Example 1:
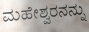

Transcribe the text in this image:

ಮಹೇಶ್ವರನನ್ನು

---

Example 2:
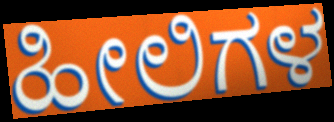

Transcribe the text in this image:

ಹೀಲಿಗಳ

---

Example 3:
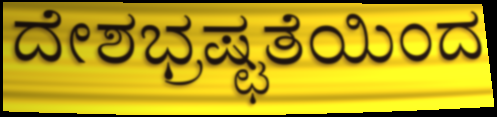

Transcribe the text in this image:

ದೇಶಭ್ರಷ್ಟತೆಯಿಂದ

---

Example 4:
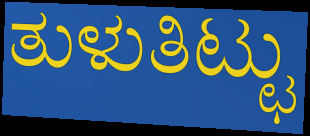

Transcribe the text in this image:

ತುಳುತಿಟ್ಟು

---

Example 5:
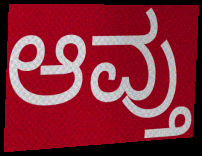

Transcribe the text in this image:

ಆವ್ತು